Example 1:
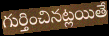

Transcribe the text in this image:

గుర్తించినట్లయితే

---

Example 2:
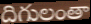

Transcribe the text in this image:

దిగులంతా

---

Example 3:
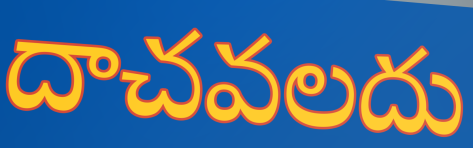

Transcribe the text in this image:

దాచవలదు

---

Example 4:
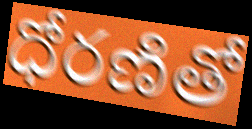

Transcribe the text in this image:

ధోరణితో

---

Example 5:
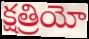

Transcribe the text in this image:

క్షత్రియో